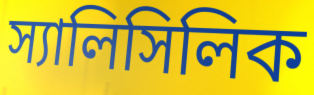
স্যালিসিলিক